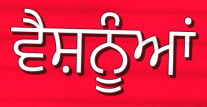
ਵੈਸ਼ਨੂੰਆਂ